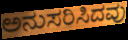
ಅನುಸರಿಸಿದವು